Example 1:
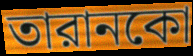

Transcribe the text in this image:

তারানকো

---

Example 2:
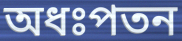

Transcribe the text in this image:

অধঃপতন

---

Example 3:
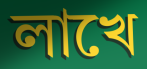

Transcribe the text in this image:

লাখে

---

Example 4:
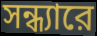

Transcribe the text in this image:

সন্ধ্যারে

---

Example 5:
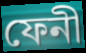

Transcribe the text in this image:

ফেনী